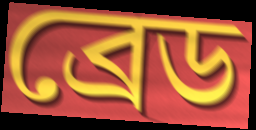
ব্রেড